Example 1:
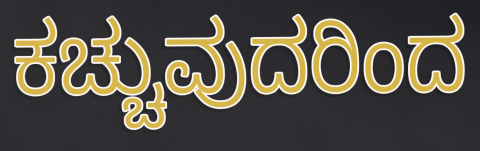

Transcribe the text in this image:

ಕಚ್ಚುವುದರಿಂದ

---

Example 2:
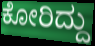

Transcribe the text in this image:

ಕೋರಿದ್ದು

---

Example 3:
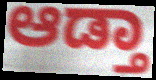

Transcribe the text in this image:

ಆಡ್ತಾ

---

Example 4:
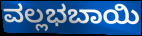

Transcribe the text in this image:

ವಲ್ಲಭಬಾಯಿ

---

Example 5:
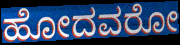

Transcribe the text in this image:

ಹೋದವರೋ